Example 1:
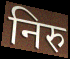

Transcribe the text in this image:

निरु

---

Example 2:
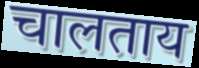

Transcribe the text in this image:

चालताय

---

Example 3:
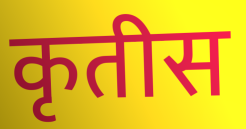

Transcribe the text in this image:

कृतीस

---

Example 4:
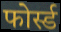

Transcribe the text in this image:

फोर्स्ड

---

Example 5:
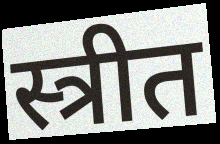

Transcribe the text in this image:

स्त्रीत